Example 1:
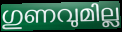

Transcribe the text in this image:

ഗുണവുമില്ല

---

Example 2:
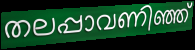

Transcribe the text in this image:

തലപ്പാവണിഞ്ഞ്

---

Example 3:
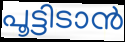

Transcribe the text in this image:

പൂട്ടിടാൻ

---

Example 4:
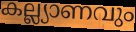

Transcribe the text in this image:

കല്ല്യാണവും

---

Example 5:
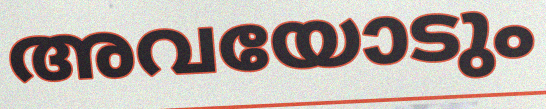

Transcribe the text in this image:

അവയോടും